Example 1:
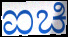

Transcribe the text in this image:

ಐಚಿ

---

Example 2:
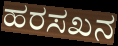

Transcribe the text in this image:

ಹರಸಖನ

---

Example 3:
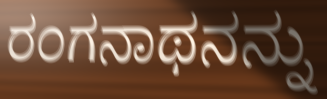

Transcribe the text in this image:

ರಂಗನಾಥನನ್ನು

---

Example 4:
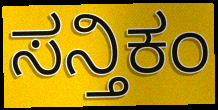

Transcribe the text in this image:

ಸನ್ತಿಕಂ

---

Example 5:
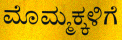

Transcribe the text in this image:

ಮೊಮ್ಮಕ್ಕಳಿಗೆ